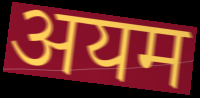
अयम